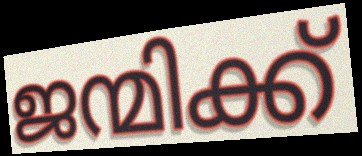
ജന്മിക്ക്